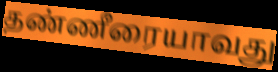
தண்ணீரையாவது